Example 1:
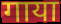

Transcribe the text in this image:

गाया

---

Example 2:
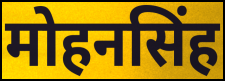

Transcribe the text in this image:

मोहनसिंह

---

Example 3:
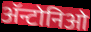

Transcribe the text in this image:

ॲन्टोनिओ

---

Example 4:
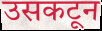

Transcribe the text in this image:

उसकटून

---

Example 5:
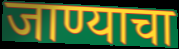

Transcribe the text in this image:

जाण्याचा